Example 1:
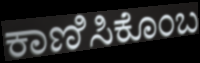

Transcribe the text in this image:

ಕಾಣಿಸಿಕೊಂಬ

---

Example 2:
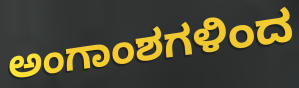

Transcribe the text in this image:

ಅಂಗಾಂಶಗಳಿಂದ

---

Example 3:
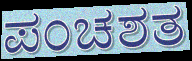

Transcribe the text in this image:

ಪಂಚಶತ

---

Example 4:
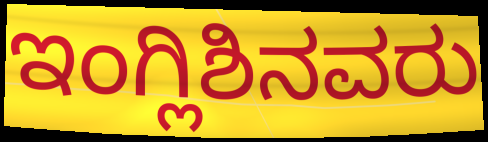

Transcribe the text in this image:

ಇಂಗ್ಲಿಶಿನವರು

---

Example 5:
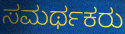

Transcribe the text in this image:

ಸಮರ್ಥಕರು